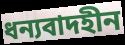
ধন্যবাদহীন